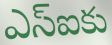
ఎస్ఐకు